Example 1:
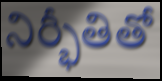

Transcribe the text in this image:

నిర్భీతితో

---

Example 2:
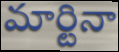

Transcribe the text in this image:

మార్టినా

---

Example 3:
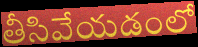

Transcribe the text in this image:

తీసివేయడంలో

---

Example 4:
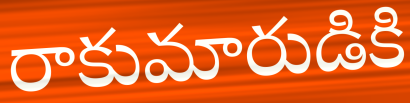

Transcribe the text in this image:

రాకుమారుడికి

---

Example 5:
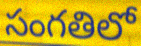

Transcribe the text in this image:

సంగతిలో